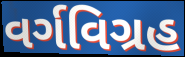
વર્ગવિગ્રહ